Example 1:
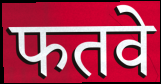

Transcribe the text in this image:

फतवे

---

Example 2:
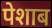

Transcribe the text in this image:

पेशाब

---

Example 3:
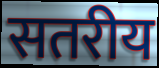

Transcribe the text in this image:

सतरीय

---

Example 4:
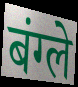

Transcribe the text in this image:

बंग्ले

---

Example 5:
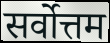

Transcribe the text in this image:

सर्वोत्तम